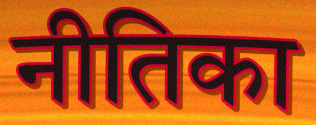
नीतिका